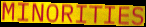
MINORITIES